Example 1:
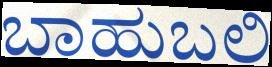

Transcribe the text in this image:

ಬಾಹುಬಲಿ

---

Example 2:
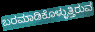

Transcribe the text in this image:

ಬರಮಾಡಿಕೊಳ್ಳುತ್ತಿರುವ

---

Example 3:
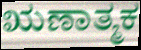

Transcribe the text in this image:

ಋಣಾತ್ಮಕ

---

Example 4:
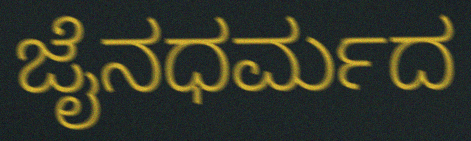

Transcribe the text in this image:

ಜೈನಧರ್ಮದ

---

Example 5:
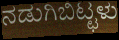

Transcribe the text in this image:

ನಡುಗಿಬಿಟ್ಟಳು